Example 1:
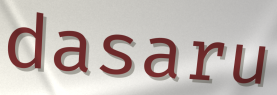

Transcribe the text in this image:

dasaru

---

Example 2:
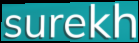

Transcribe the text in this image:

surekh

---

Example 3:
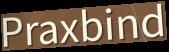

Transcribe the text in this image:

Praxbind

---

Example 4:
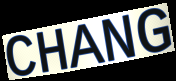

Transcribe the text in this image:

CHANG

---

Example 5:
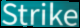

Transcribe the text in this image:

Strike